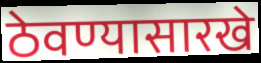
ठेवण्यासारखे